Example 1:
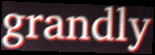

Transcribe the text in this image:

grandly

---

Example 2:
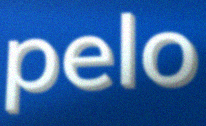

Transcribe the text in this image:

pelo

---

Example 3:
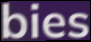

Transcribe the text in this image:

bies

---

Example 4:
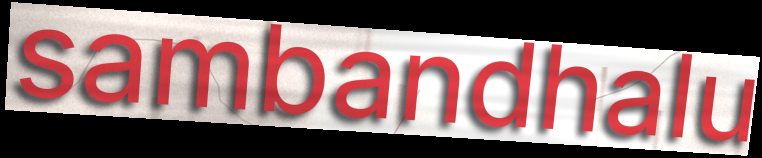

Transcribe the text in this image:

sambandhalu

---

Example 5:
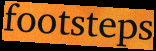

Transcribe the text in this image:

footsteps